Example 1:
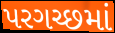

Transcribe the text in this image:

પરગચ્છમાં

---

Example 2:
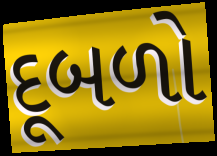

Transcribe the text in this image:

દૂબળો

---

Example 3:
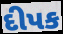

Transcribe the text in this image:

દીપક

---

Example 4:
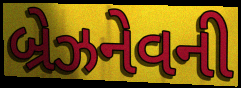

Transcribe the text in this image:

બ્રેઝનેવની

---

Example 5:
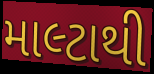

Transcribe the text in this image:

માલ્ટાથી